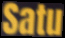
Satu